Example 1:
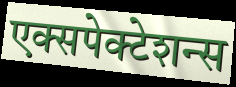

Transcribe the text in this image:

एक्सपेक्टेशन्स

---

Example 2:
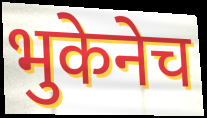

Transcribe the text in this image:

भुकेनेच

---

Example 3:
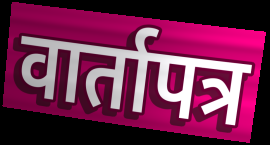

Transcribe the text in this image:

वार्तापत्र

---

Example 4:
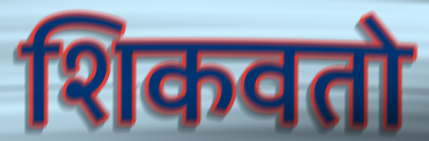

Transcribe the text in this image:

शिकवतो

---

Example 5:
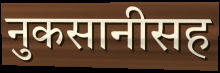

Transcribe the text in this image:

नुकसानीसह